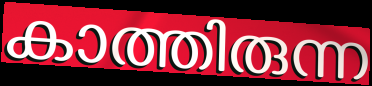
കാത്തിരുന്ന